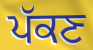
ਪੱਕਣ